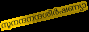
സുനന്ദനന്ദശീർഷണ്യാ